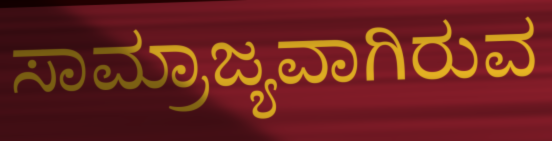
ಸಾಮ್ರಾಜ್ಯವಾಗಿರುವ